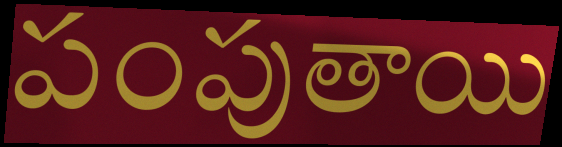
పంపుతాయి